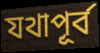
যথাপূর্ব